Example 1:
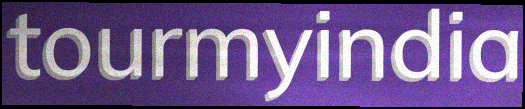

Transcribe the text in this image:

tourmyindia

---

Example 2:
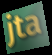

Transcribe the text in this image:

jta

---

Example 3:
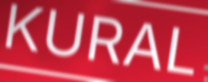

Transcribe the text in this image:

KURAL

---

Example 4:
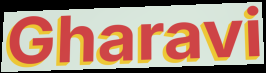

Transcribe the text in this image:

Gharavi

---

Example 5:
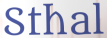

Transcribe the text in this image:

Sthal